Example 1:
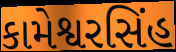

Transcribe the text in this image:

કામેશ્વરસિંહ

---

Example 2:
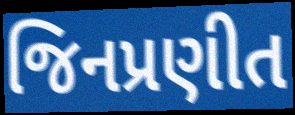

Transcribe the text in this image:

જિનપ્રણીત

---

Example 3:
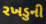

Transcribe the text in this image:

રખડુની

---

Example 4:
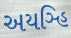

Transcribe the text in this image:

અયઞ્હિ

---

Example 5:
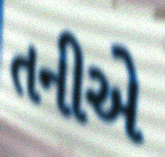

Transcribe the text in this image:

તનીએ